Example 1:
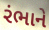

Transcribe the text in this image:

રંભાને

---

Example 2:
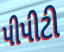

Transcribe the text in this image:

પીપીટી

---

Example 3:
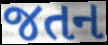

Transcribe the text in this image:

જતન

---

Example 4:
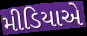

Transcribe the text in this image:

મીડિયાએ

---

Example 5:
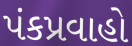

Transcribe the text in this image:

પંકપ્રવાહો